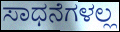
ಸಾಧನೆಗಳಲ್ಲ